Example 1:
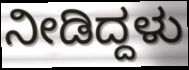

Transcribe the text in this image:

ನೀಡಿದ್ದಳು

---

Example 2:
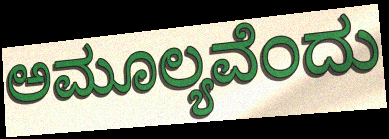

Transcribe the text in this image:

ಅಮೂಲ್ಯವೆಂದು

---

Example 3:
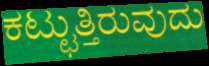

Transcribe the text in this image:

ಕಟ್ಟುತ್ತಿರುವುದು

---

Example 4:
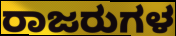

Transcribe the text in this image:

ರಾಜರುಗಳ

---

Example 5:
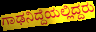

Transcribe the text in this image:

ಗಾಢನಿದ್ದೆಯಲ್ಲಿದ್ದರು